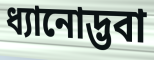
ধ্যানোদ্ভবা